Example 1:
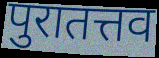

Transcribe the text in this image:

पुरातत्तव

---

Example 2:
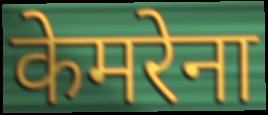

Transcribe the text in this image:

केमरेना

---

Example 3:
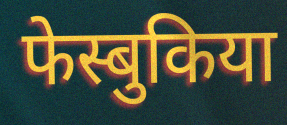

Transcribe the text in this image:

फेस्बुकिया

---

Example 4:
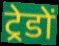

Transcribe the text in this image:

ट्रेडों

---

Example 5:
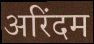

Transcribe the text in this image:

अरिंदम